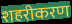
शहरीकरण